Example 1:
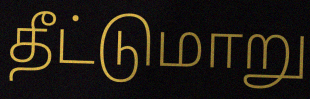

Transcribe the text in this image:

தீட்டுமாறு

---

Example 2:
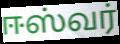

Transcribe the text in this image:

ஈஸ்வர்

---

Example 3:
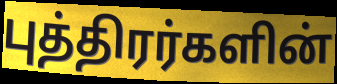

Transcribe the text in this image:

புத்திரர்களின்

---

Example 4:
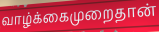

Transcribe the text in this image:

வாழ்க்கைமுறைதான்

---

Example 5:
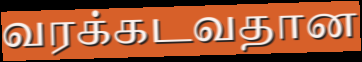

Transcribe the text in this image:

வரக்கடவதான